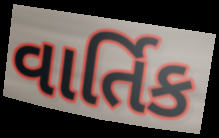
વાર્તિક